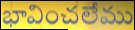
భావించలేము